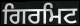
ਗਿਰਮਿਟ